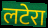
लटेरा